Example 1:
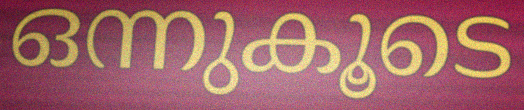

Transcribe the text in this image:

ഒന്നുകൂടെ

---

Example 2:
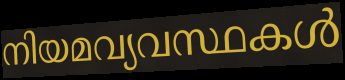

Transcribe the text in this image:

നിയമവ്യവസ്ഥകൾ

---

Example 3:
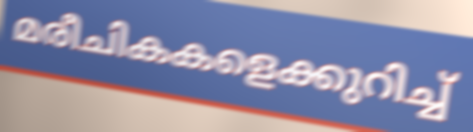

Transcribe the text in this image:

മരീചികകളെക്കുറിച്ച്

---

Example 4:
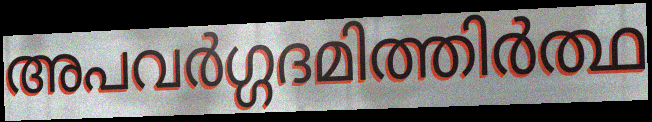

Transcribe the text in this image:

അപവർഗ്ഗദമിത്തിർത്ഥ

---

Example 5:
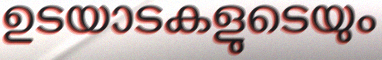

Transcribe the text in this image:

ഉടയാടകളുടെയും